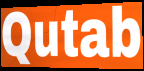
Qutab